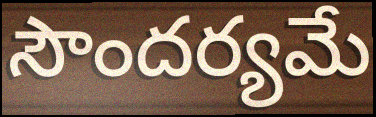
సౌందర్యమే